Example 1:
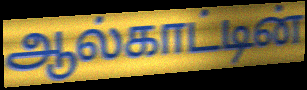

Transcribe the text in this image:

ஆல்காட்டின்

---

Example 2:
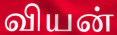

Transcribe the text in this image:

வியன்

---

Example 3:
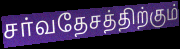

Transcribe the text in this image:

சர்வதேசத்திற்கும்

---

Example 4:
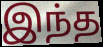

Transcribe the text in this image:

இந்த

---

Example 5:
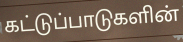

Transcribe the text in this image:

கட்டுப்பாடுகளின்